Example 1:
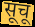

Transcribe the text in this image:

सूचू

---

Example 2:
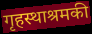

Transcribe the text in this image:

गृहस्थाश्रमकी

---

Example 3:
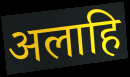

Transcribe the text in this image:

अलाहि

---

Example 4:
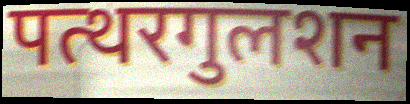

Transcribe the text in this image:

पत्थरगुलशन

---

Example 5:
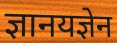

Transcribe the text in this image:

ज्ञानयज्ञेन